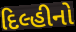
દિલ્હીનો